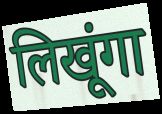
लिखूंगा